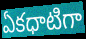
ఏకధాటిగా